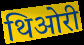
थिओरी